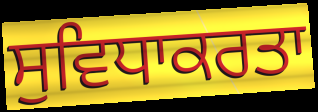
ਸੁਵਿਧਾਕਰਤਾ